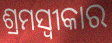
ଶ୍ରମସ୍ୱୀକାର